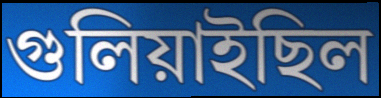
গুলিয়াইছিল